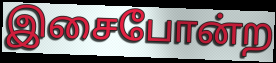
இசைபோன்ற